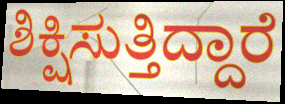
ಶಿಕ್ಷಿಸುತ್ತಿದ್ದಾರೆ